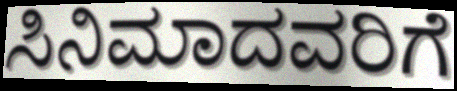
ಸಿನಿಮಾದವರಿಗೆ